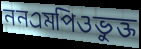
ননএমপিওভুক্ত